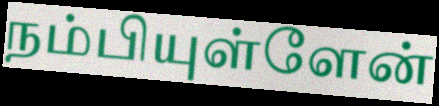
நம்பியுள்ளேன்